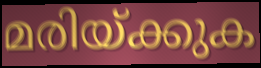
മരിയ്ക്കുക